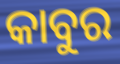
କାବୁର